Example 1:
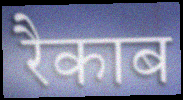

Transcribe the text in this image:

रैकाब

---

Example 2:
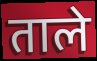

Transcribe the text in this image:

ताले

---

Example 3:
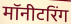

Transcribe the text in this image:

मॉनीटरिंग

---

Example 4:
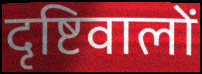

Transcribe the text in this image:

दृष्टिवालों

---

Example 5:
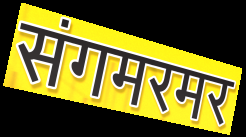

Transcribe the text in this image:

संगमरमर